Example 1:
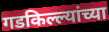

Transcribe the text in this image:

गडकिल्ल्यांच्या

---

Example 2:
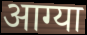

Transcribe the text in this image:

आग्या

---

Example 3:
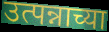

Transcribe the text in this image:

उत्पन्नाच्या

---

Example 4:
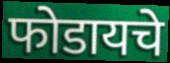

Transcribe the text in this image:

फोडायचे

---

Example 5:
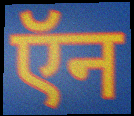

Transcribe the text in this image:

ऍन